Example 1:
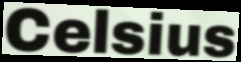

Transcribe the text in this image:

Celsius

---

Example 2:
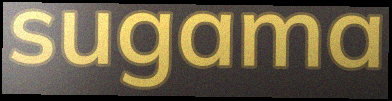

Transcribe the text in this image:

sugama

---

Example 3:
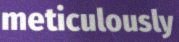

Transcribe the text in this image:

meticulously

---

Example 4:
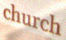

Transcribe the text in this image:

church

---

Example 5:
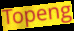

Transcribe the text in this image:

Topeng